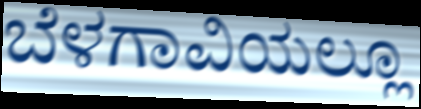
ಬೆಳಗಾವಿಯಲ್ಲೂ